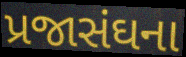
પ્રજાસંઘના